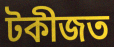
টকীজত